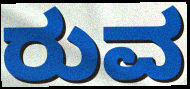
ರುವ